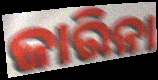
ଜାରିନା